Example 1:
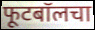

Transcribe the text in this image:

फूटबॉलचा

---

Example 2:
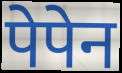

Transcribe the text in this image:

पेपेन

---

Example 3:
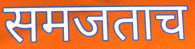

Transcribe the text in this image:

समजताच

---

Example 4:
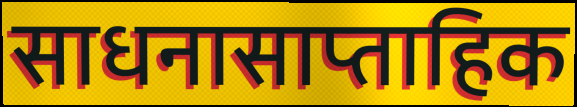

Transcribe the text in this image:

साधनासाप्ताहिक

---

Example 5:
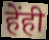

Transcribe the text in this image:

हेंही